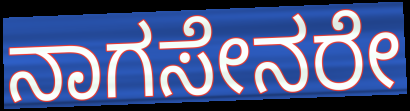
ನಾಗಸೇನರೇ